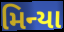
મિન્યા